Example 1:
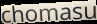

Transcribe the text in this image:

chomasu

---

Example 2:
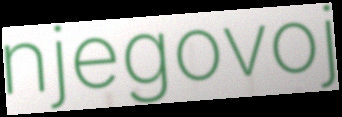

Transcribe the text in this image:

njegovoj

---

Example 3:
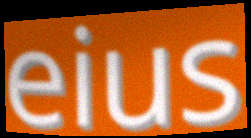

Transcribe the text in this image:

eius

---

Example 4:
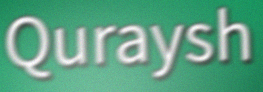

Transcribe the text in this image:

Quraysh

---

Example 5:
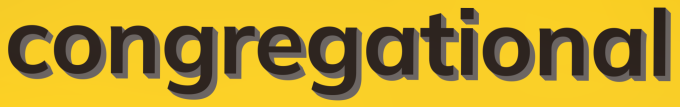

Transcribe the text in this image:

congregational